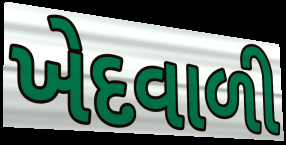
ખેદવાળી